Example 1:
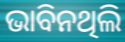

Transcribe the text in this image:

ଭାବିନଥିଲି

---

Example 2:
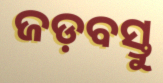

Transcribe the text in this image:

ଜଡ଼ବସ୍ତୁ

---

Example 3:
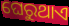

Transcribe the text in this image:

ଘେରୁଥାଏ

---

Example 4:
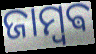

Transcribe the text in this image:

ଜାମ୍ବଵ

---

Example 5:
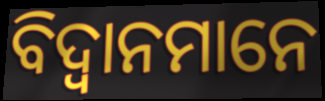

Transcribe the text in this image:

ବିଦ୍ଵାନମାନେ